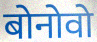
बोनोवो